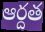
ఆర్దత